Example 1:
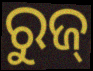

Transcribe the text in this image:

ରୁଜ୍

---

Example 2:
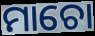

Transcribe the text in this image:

ମାଚୋ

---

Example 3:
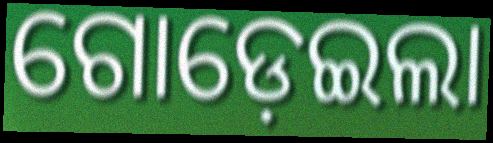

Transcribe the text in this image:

ଗୋଡ଼େଇଲା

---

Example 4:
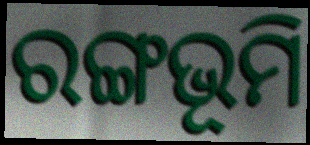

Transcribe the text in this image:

ରଙ୍ଗଭୂମି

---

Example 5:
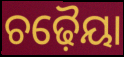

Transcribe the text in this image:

ଚଢ଼ୈୟା